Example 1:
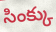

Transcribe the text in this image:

సింక్కు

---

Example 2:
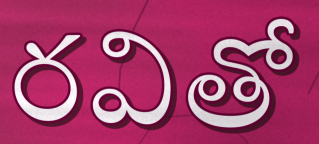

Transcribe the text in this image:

రవితో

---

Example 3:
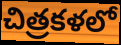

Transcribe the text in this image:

చిత్రకళలో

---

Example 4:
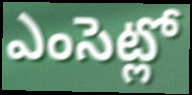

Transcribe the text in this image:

ఎంసెట్లో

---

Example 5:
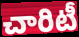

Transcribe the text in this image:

చారిటీ